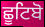
ਛੂਟਿਬੋ